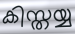
കിസ്തയ്യ